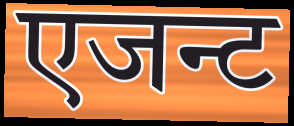
एजन्ट